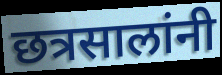
छत्रसालांनी